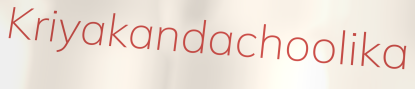
Kriyakandachoolika